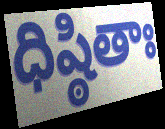
ధిష్ఠితాః